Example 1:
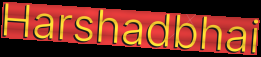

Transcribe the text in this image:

Harshadbhai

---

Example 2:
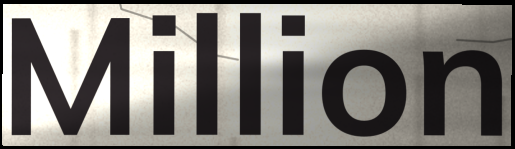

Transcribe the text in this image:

Million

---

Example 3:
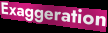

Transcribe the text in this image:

Exaggeration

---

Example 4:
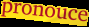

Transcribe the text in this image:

pronouce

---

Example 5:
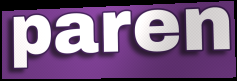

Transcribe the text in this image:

paren